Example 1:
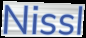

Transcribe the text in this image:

Nissl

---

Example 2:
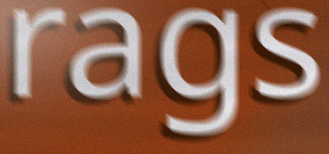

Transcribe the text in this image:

rags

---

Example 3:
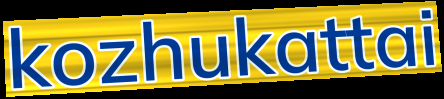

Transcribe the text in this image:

kozhukattai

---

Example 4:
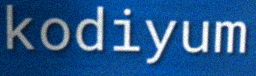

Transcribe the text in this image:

kodiyum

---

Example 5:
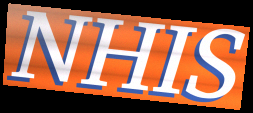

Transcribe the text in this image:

NHIS